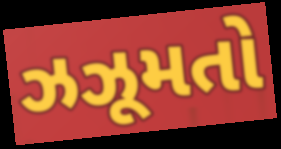
ઝઝૂમતો